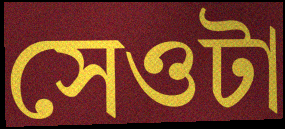
সেওটা